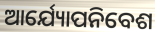
ଆର୍ଯ୍ୟୋପନିବେଶ